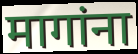
मागांना